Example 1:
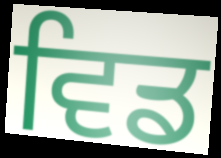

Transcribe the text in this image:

ਵਿਡ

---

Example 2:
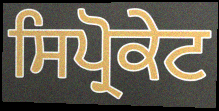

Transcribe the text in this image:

ਸਿਪ੍ਰੋਕੇਟ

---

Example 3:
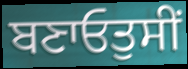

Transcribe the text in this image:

ਬਣਾਓਤੁਸੀਂ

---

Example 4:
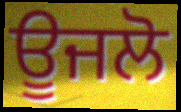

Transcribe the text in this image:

ਊਜਲੋ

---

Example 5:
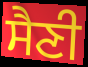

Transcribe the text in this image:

ਸੈਣੀ